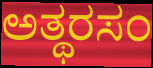
ಅತ್ಥರಸಂ